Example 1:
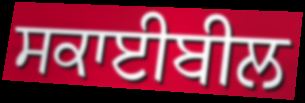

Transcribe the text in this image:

ਸਕਾਈਬੀਲ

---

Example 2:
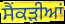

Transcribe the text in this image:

ਸੈਂਕੜੀਆਂ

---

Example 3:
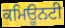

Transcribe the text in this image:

ਕਮਿਊਨਟੀ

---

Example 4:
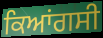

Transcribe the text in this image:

ਕਿਆਂਗਸੀ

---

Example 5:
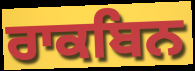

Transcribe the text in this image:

ਰਾਕਬਿਨ